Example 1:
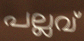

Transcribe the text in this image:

പല്ലവ്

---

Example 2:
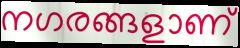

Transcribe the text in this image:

നഗരങ്ങളാണ്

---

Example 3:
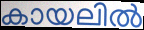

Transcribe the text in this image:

കായലിൽ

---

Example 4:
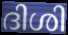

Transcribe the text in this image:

ദിശി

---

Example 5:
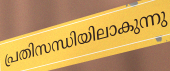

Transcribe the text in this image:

പ്രതിസന്ധിയിലാകുന്നു